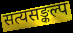
सत्यसङ्कल्प